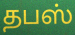
தபஸ்